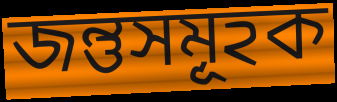
জন্তুসমূহক